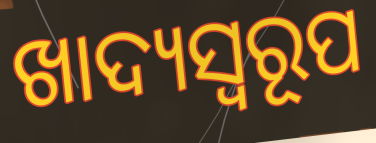
ଖାଦ୍ୟସ୍ୱରୂପ